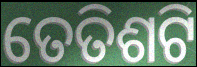
ତେତିଶଟି